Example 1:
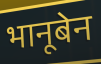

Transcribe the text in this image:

भानूबेन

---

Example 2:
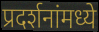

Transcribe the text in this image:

प्रदर्शनांमध्ये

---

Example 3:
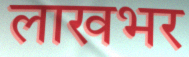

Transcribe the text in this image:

लाखभर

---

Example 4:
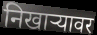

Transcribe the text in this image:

निखार्‍यावर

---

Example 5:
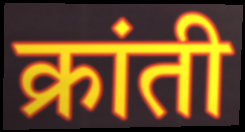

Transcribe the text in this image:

क्रांती